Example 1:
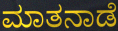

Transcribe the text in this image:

ಮಾತನಾಡೆ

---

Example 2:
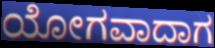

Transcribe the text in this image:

ಯೋಗವಾದಾಗ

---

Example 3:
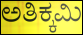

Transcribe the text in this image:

ಅತಿಕ್ಕಮಿ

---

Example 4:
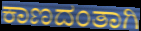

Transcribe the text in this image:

ಕಾಣದಂತಾಗಿ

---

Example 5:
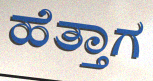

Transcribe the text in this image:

ಹೆತ್ತಾಗ